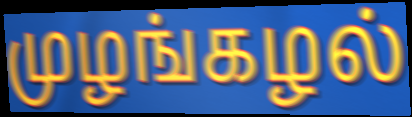
முழங்கழல்